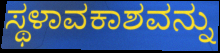
ಸ್ಥಳಾವಕಾಶವನ್ನು